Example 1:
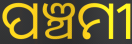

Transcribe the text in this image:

ପଞ୍ଚମୀ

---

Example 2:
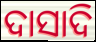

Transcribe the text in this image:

ଦାସାଦି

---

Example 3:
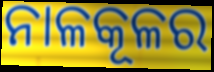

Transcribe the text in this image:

ନାଳକୂଳର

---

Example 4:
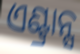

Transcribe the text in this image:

ଏଣ୍ଟ୍ରାନ୍ସ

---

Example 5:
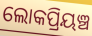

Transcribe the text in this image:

ଲୋକପ୍ରିୟଞ୍ଚ